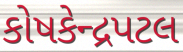
કોષકેન્દ્રપટલ